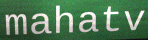
mahatv